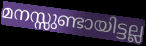
മനസ്സുണ്ടായിട്ടല്ല